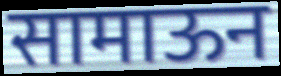
सामाऊन